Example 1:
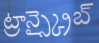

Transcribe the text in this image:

ట్రాన్స్క్రైబ్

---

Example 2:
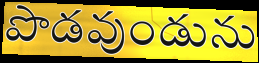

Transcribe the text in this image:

పొడవుండును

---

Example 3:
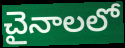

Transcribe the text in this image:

చైనాలలో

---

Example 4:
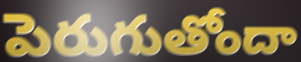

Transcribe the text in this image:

పెరుగుతోందా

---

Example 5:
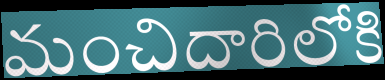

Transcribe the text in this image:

మంచిదారిలోకి